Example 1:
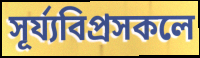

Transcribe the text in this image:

সূৰ্য্যবিপ্ৰসকলে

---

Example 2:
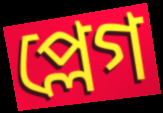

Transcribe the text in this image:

প্লেগ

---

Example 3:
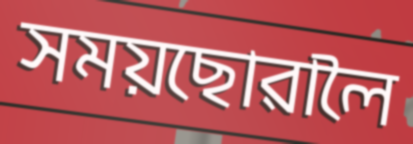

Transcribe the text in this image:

সময়ছোৱালৈ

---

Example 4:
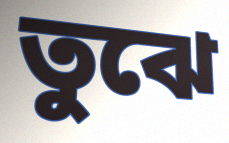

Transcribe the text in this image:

তুঝে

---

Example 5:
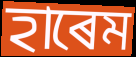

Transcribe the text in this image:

হাৰেম